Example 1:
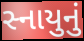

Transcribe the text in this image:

સ્નાયુનું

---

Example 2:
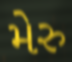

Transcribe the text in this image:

મેરુ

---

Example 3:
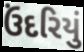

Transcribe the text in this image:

ઉંદરિયું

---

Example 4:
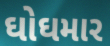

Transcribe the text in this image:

ઘોઘમાર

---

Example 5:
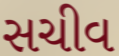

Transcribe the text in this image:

સચીવ